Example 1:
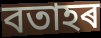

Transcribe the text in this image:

বতাহৰ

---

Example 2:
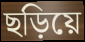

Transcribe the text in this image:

ছড়িয়ে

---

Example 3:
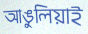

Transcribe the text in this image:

আঙুলিয়াই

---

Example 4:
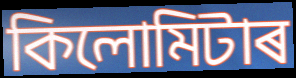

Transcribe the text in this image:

কিলোমিটাৰ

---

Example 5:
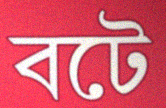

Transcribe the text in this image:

বটে